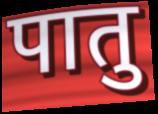
पातु